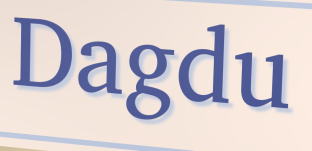
Dagdu